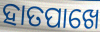
ହାତପାଖେ